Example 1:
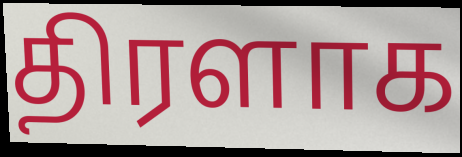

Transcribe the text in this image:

திரளாக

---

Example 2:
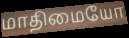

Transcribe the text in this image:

மாதிமையோ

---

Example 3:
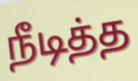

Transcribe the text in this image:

நீடித்த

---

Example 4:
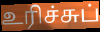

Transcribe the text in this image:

உரிச்சுப்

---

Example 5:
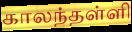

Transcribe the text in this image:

காலந்தள்ளி